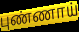
புண்ணாய்